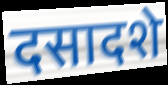
दसादशे